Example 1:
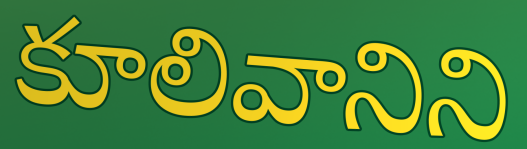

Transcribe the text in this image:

కూలివానిని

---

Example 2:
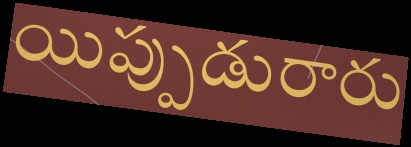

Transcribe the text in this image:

యిప్పుడురారు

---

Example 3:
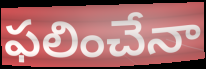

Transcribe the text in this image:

ఫలించేనా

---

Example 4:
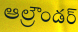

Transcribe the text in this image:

ఆల్రౌండర్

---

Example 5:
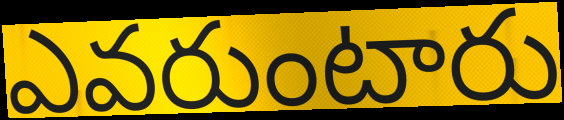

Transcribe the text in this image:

ఎవరుంటారు